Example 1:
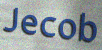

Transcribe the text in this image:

Jecob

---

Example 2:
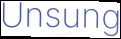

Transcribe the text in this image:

Unsung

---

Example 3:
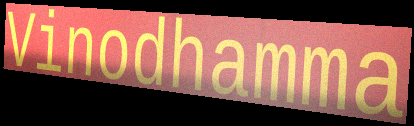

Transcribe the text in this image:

Vinodhamma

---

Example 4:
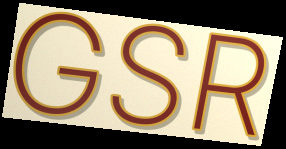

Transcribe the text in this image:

GSR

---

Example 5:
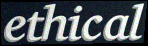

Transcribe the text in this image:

ethical